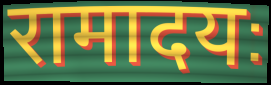
रामादयः